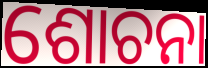
ଶୋଚନା